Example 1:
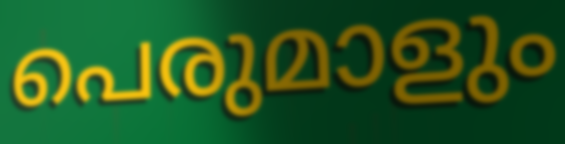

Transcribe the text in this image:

പെരുമാളും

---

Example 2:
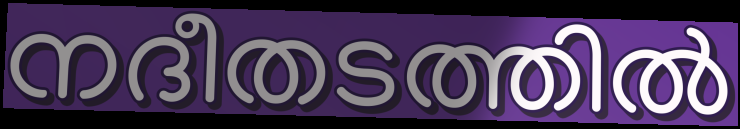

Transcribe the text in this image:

നദീതടത്തിൽ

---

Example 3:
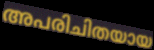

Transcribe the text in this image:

അപരിചിതയായ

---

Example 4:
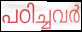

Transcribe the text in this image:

പഠിച്ചവർ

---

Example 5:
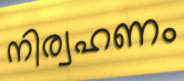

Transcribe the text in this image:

നിര്വഹണം